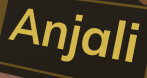
Anjali